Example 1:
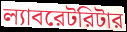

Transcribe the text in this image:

ল্যাবরেটরিটার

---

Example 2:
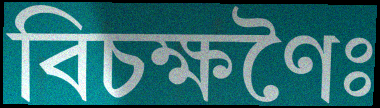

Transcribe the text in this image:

বিচক্ষণৈঃ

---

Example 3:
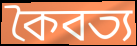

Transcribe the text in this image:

কৈবত্য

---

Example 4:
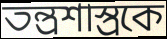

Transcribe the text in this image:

তন্ত্রশাস্ত্রকে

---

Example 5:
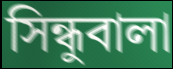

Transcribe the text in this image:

সিন্ধুবালা